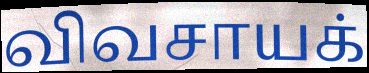
விவசாயக்